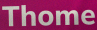
Thome